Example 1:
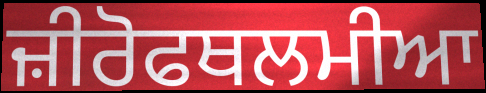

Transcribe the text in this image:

ਜ਼ੀਰੋਫਥਲਮੀਆ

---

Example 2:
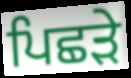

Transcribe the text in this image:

ਪਿਛੜੇ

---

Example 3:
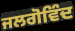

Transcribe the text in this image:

ਜਲਗੋਵਿੰਦ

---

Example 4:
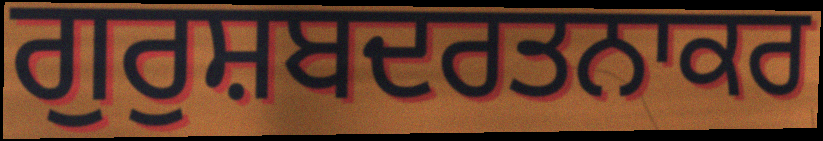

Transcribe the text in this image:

ਗੁਰੁਸ਼ਬਦਰਤਨਾਕਰ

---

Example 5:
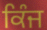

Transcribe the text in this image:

ਕਿੰਜ